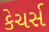
કેચર્સ